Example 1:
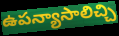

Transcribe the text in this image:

ఉపన్యాసాలిచ్చి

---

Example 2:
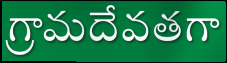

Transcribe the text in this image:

గ్రామదేవతగా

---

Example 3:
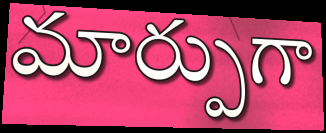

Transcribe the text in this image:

మార్పుగా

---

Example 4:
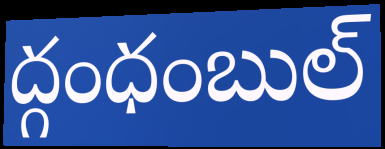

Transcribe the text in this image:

ద్గంధంబుల్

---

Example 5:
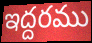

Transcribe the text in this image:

ఇద్దరము